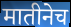
मातीनेच